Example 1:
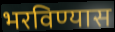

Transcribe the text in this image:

भरविण्यास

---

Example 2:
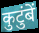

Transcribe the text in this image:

कुटुंबें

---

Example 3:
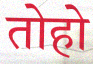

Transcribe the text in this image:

तोहो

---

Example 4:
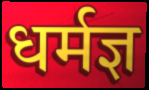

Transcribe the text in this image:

धर्मज्ञ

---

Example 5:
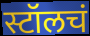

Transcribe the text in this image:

स्टॉलचं